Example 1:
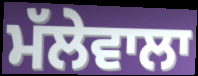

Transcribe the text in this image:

ਮੱਲੇਵਾਲਾ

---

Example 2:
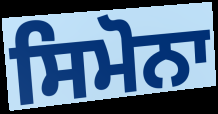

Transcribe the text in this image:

ਸਿਮੋਨਾ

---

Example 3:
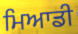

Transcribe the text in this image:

ਮਿਆਡੀ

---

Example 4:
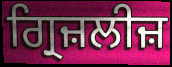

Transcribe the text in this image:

ਗ੍ਰਿਜ਼ਲੀਜ਼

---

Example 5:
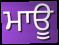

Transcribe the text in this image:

ਮਾਊ